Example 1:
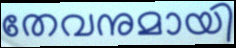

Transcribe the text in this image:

തേവനുമായി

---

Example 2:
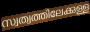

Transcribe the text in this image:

സ്വത്വത്തിലേക്കുള്ള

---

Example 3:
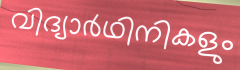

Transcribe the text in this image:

വിദ്യാർഥിനികളും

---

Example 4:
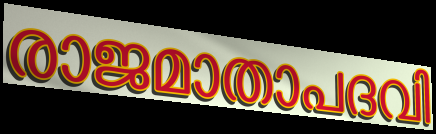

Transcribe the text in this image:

രാജമാതാപദവി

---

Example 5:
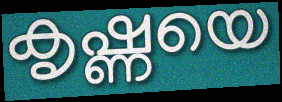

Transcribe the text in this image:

കൃഷ്ണയെ